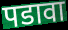
पडावा